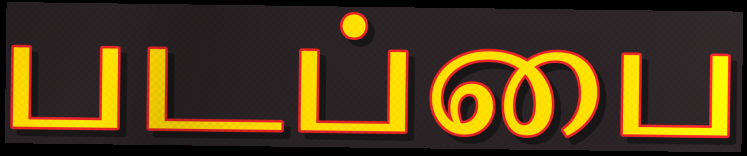
படப்பை